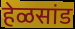
हेळसांड